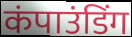
कंपाउंडिंग